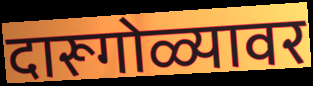
दारूगोळ्यावर